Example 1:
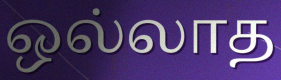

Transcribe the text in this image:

ஒல்லாத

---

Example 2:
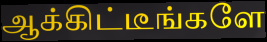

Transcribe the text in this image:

ஆக்கிட்டீங்களே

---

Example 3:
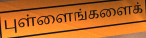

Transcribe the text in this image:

புள்ளைங்களைக்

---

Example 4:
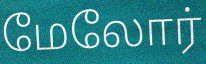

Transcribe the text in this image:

மேலோர்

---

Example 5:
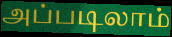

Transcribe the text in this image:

அப்படிலாம்